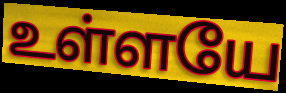
உள்ளயே